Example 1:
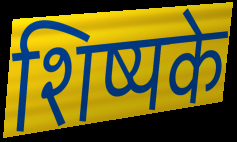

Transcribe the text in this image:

शिष्यके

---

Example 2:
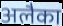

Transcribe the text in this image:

अलैका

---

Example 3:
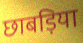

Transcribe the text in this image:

छाबड़िया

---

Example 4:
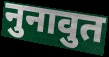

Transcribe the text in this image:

नुनावुत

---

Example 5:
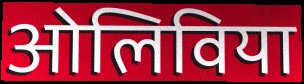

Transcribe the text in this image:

ओलिविया